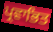
ਪ੍ਰਵਾਭਿਤ